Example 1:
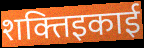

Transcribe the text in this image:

शक्तिइकाई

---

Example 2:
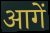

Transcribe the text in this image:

आगें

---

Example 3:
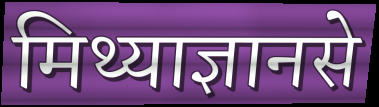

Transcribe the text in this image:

मिथ्याज्ञानसे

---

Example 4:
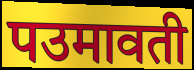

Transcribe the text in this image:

पउमावती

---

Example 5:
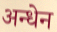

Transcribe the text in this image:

अन्धेन